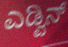
ಎಡ್ವಿನ್